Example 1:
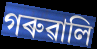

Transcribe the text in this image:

গৰুৱালি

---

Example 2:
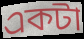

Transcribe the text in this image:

একটা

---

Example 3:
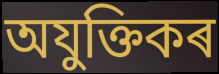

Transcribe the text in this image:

অযুক্তিকৰ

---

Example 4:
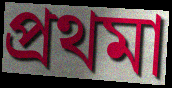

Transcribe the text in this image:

প্ৰথমা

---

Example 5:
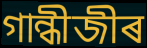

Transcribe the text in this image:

গান্ধীজীৰ